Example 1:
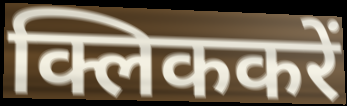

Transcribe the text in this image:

क्लिककरें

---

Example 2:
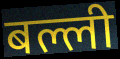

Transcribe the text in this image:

बल्ली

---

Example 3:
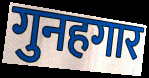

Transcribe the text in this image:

गुनहगार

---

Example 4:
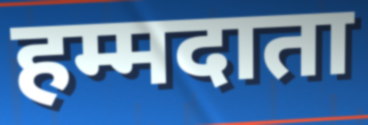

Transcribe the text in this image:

हम्मदाता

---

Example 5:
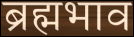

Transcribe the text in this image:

ब्रह्मभाव